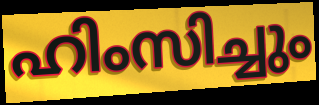
ഹിംസിച്ചും